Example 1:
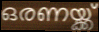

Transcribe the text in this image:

ഒരണയ്ക്ക്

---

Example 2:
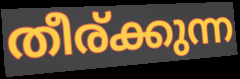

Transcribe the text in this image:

തീര്ക്കുന്ന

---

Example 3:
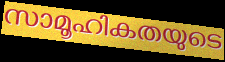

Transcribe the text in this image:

സാമൂഹികതയുടെ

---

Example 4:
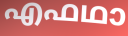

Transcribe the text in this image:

എഫഥാ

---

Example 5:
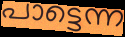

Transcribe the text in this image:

പാട്ടെന്ന